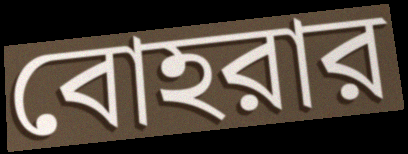
বোহরার